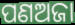
ପଣଅଜା